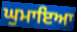
ਘੁਮਾਇਆ